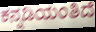
ಕನ್ನಡಿಯಂತಿದೆ